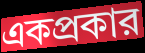
একপ্রকার